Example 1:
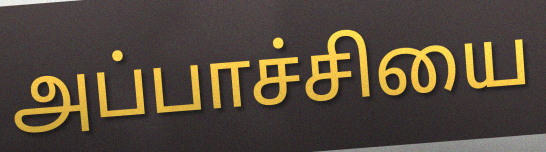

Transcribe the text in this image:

அப்பாச்சியை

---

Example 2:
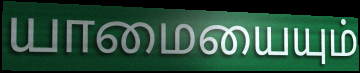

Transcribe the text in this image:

யாமையையும்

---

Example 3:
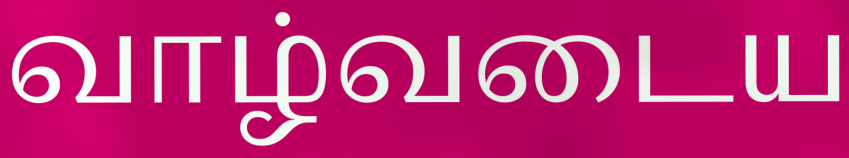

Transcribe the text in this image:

வாழ்வடைய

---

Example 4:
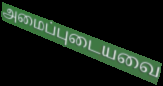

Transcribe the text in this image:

அமைப்புடையவை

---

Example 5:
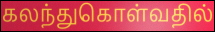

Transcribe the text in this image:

கலந்துகொள்வதில்